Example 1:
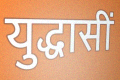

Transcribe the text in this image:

युद्धासीं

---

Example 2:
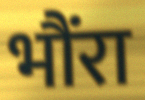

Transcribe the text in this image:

भौंरा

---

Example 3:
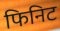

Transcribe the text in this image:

फिनिट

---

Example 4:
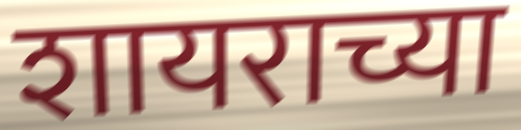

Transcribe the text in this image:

शायराच्या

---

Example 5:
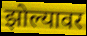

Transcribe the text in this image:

झोल्यावर